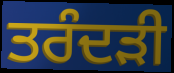
ਤਰੰਦੜੀ